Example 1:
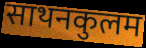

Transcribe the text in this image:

साथनकुलम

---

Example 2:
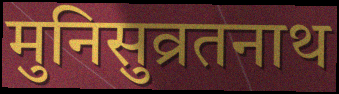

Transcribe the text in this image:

मुनिसुव्रतनाथ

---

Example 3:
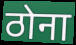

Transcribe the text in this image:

ठोना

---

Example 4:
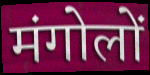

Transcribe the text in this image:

मंगोलों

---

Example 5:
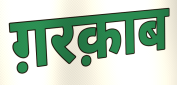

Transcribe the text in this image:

ग़रक़ाब